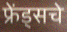
फ्रेंड्सचे